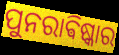
ପୁନରାଵିଷ୍କାର